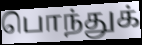
பொந்துக்